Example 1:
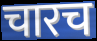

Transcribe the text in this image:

चारच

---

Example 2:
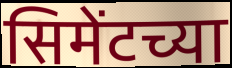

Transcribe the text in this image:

सिमेंटच्या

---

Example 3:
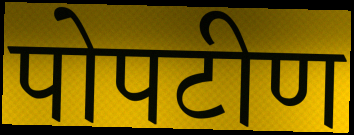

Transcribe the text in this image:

पोपटीण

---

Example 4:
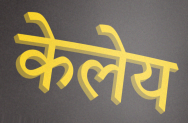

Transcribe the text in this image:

केलेय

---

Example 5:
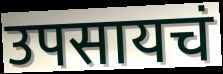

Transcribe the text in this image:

उपसायचं